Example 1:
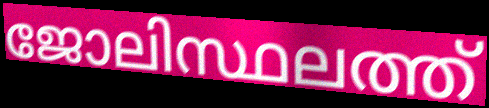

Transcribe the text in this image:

ജോലിസ്ഥലത്ത്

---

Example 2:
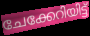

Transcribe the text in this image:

ചേക്കേറിയിട്ട്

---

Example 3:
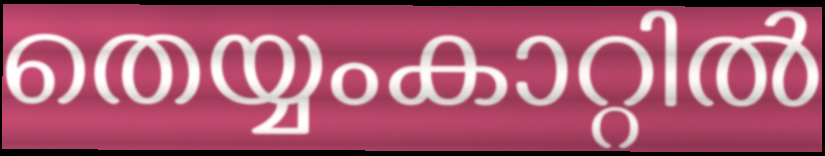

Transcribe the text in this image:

തെയ്യംകാറ്റിൽ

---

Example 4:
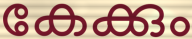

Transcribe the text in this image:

കേക്കും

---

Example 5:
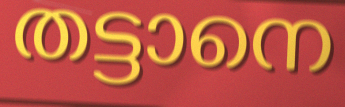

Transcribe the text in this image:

തട്ടാനെ